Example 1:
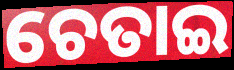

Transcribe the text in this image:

ଚେତାଇ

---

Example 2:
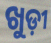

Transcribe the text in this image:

ଖୁଡ଼ୀ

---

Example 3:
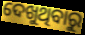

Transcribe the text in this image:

ଦେଖୁଥିବାରୁ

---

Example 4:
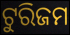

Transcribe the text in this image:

ଟୁରିଜମ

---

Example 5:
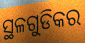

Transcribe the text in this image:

ସ୍ଥଳଗୁଡିକର